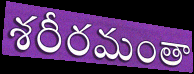
శరీరమంతా